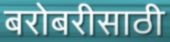
बरोबरीसाठी